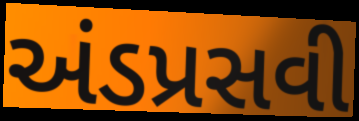
અંડપ્રસવી